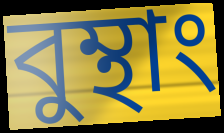
বুম্থাং